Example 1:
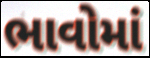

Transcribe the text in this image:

ભાવોમાં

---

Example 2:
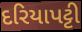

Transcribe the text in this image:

દરિયાપટ્ટી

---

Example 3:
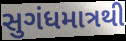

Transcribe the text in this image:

સુગંધમાત્રથી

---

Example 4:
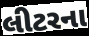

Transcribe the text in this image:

લીટરના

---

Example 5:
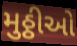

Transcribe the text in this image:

મુઠ્ઠીઓ